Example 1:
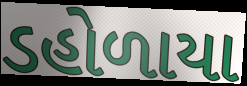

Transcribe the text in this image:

ડહોળાયા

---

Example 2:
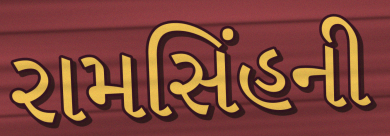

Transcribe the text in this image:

રામસિંહની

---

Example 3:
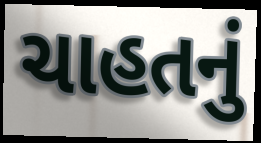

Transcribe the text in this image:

ચાહતનું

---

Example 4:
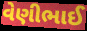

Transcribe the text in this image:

વેણીભાઈ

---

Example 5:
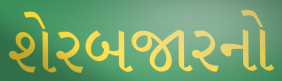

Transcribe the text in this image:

શેરબજારનો